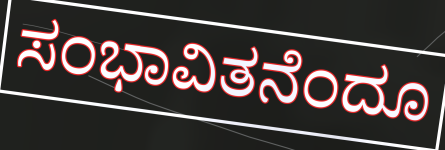
ಸಂಭಾವಿತನೆಂದೂ